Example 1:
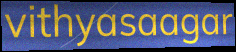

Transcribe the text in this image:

vithyasaagar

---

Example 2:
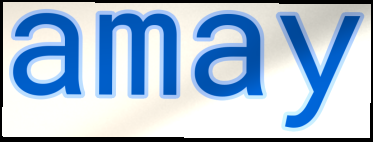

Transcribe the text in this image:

amay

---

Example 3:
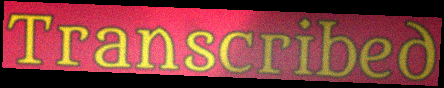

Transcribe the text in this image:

Transcribed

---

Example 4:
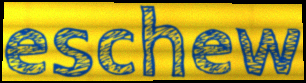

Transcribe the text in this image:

eschew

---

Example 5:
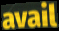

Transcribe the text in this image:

avail